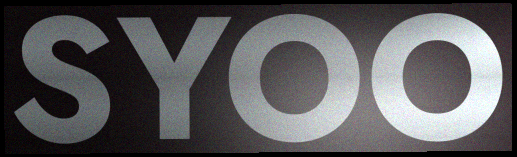
SYOO